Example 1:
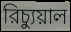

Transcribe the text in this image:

রিচ্যুয়াল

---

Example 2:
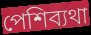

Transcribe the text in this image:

পেশিব্যথা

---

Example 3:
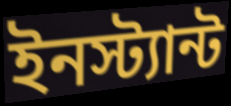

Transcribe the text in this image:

ইনস্ট্যান্ট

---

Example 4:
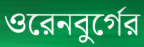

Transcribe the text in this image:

ওরেনবুর্গের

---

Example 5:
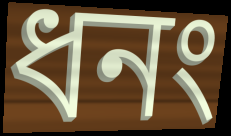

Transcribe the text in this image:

ধনং